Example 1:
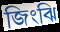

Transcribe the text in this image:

জিংঝি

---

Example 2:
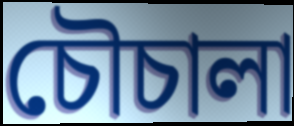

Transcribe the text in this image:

চৌচালা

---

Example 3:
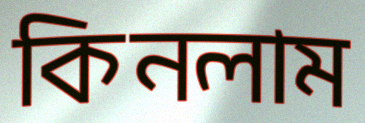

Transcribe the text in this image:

কিনলাম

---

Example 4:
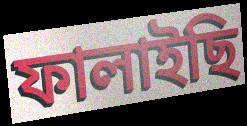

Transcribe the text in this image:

ফালাইছি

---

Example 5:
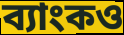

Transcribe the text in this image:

ব্যাংকও